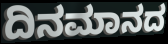
ದಿನಮಾನದ